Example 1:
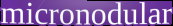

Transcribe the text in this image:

micronodular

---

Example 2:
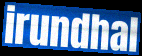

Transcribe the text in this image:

irundhal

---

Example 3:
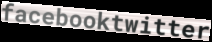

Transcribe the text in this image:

facebooktwitter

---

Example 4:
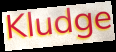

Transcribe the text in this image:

Kludge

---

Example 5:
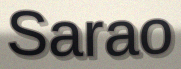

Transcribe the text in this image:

Sarao